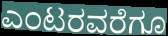
ಎಂಟರವರೆಗೂ